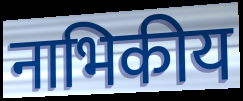
नाभिकीय